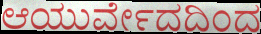
ಆಯುರ್ವೇದದಿಂದ